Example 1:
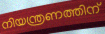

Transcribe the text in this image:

നിയന്ത്രണത്തിന്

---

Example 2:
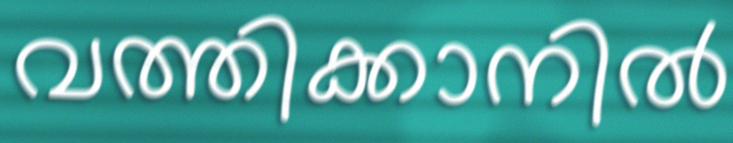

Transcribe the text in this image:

വത്തിക്കാനിൽ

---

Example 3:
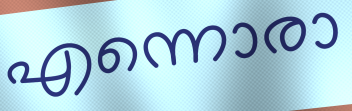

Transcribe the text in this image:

എന്നൊരാ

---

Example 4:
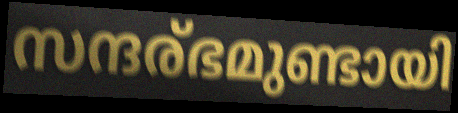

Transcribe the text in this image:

സന്ദര്ഭമുണ്ടായി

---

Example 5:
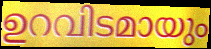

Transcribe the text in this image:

ഉറവിടമായും